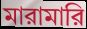
মারামারি